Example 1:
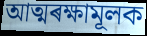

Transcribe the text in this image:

আত্মৰক্ষামূলক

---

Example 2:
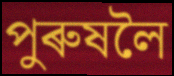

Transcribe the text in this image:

পুৰুষলৈ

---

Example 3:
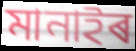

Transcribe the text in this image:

মানাইৰ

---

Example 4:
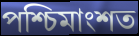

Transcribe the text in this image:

পশ্চিমাংশত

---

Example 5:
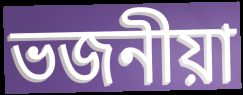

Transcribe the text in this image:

ভজনীয়া